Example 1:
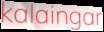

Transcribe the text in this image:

kalaingar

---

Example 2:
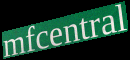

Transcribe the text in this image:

mfcentral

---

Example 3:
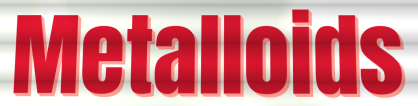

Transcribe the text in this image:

Metalloids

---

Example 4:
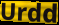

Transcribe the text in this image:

Urdd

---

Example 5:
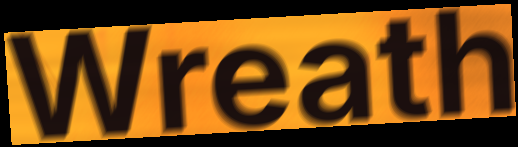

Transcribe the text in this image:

Wreath